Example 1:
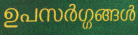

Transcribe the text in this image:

ഉപസർഗ്ഗങ്ങൾ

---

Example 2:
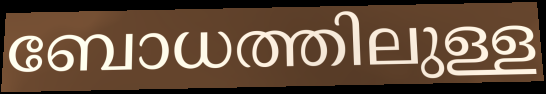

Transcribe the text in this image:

ബോധത്തിലുള്ള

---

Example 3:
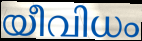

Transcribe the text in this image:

യീവിധം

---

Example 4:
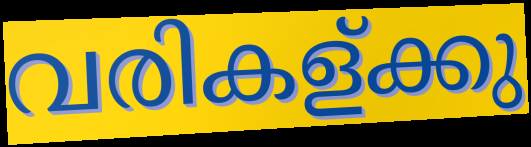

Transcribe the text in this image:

വരികള്ക്കു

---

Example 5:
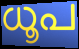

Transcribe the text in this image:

ധൂപ